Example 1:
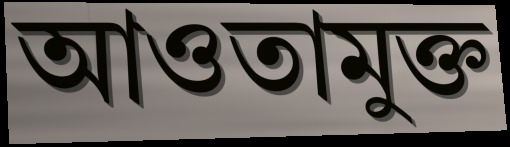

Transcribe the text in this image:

আওতামুক্ত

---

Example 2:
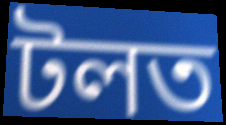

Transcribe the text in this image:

টলত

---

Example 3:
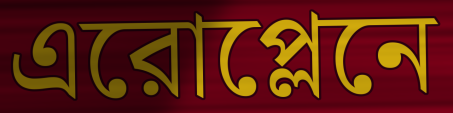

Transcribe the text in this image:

এরোপ্লেনে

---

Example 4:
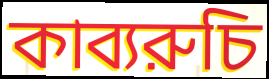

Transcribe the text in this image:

কাব্যরুচি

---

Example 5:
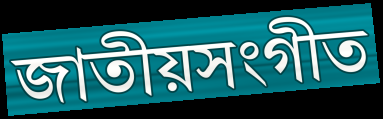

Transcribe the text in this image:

জাতীয়সংগীত